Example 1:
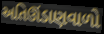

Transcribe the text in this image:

અતિઊંડાણવાળો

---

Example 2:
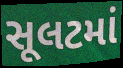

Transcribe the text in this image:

સૂલટમાં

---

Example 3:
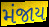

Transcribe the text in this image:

મંજાય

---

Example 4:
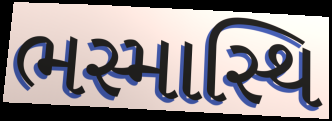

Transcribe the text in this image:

ભસ્માસ્થિ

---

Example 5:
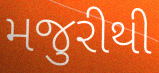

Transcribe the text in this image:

મજુરીથી